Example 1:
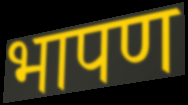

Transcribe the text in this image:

भापण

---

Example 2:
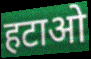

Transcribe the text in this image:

हटाओ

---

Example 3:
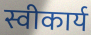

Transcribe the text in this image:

स्‍वीकार्य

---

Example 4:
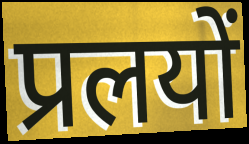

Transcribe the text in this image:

प्रलयों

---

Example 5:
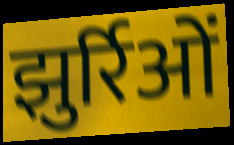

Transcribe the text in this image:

झुर्रिओं